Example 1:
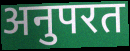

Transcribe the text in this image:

अनुपरत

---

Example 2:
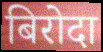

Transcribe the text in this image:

बिरोदा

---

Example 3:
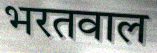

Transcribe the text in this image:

भरतवाल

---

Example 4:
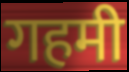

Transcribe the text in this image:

गहमी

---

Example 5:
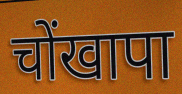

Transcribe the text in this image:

चोंखापा